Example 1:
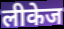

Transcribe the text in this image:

लीकेज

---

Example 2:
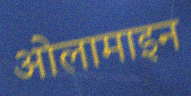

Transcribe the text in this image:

ओलामाइन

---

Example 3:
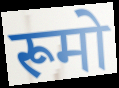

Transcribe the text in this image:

रूमो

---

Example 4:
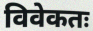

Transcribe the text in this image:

विवेकतः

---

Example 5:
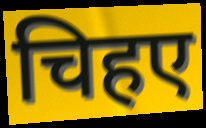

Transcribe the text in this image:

चिहए